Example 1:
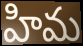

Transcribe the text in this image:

హిమ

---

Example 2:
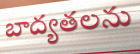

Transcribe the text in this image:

బాద్యతలను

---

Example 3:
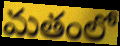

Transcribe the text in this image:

మతంలో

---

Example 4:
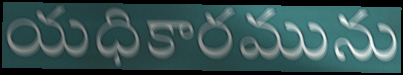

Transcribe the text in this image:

యధికారమును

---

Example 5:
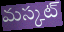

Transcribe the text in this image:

మస్కట్